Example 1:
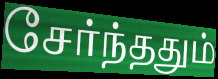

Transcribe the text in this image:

சேர்ந்ததும்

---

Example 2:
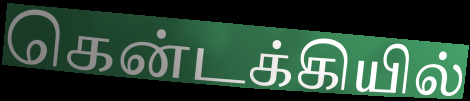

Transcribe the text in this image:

கென்டக்கியில்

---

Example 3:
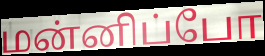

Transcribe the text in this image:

மன்னிப்போ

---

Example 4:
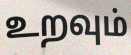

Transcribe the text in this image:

உறவும்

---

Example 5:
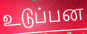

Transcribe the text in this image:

உடுப்பன